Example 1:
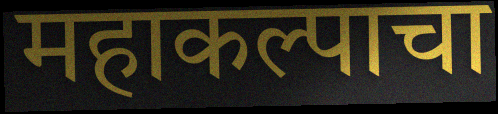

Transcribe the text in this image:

महाकल्पाचा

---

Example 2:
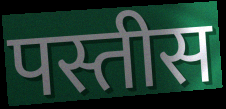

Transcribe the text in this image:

पस्तीस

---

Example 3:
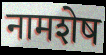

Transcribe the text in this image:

नामशेष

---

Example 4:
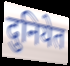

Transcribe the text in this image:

दुनियेत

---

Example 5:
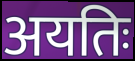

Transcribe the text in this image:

अयतिः